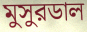
মুসুরডাল